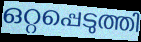
ഒറ്റപ്പെടുത്തി